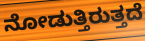
ನೋಡುತ್ತಿರುತ್ತದೆ